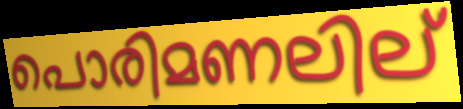
പൊരിമണലില്